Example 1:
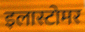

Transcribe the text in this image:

इलास्टोमर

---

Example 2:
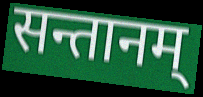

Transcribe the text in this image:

सन्तानम्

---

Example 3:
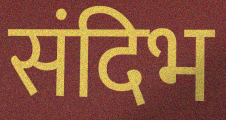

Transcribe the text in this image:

संदिभ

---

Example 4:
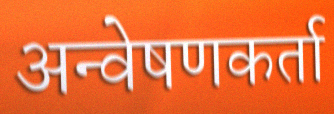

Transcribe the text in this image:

अन्वेषणकर्ता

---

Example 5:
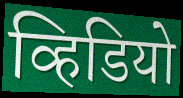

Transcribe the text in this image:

व्हिडियो